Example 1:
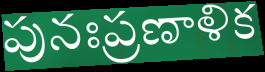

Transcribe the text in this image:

పునఃప్రణాళిక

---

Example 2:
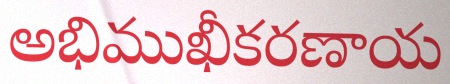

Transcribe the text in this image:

అభిముఖీకరణాయ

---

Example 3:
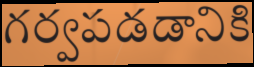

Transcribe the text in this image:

గర్వపడడానికి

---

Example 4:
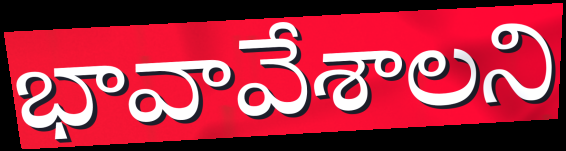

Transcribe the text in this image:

భావావేశాలని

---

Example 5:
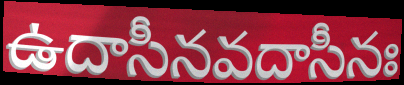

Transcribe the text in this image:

ఉదాసీనవదాసీనః